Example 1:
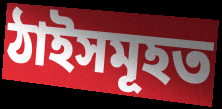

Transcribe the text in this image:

ঠাইসমূহত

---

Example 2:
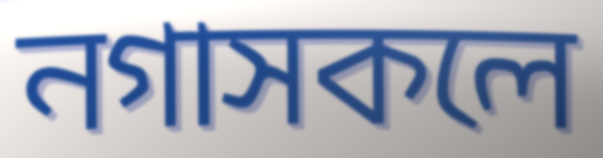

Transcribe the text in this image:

নগাসকলে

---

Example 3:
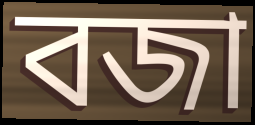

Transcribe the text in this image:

বজা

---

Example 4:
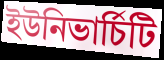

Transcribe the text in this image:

ইউনিভাৰ্চিটি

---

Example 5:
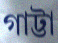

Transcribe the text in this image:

গাট্টা